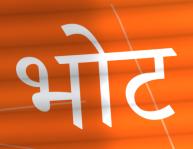
भोट